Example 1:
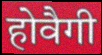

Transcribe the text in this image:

होवैगी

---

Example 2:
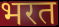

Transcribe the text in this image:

भरत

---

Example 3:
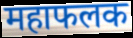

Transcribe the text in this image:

महाफलक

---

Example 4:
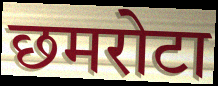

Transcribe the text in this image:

छमरोटा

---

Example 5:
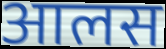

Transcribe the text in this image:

आलस